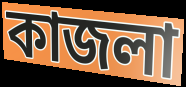
কাজলা